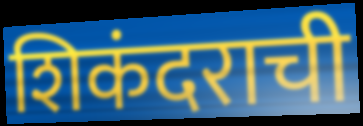
शिकंदराची